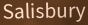
Salisbury